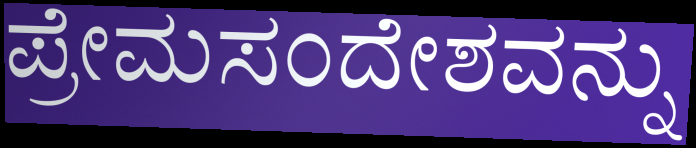
ಪ್ರೇಮಸಂದೇಶವನ್ನು